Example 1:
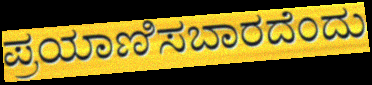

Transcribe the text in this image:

ಪ್ರಯಾಣಿಸಬಾರದೆಂದು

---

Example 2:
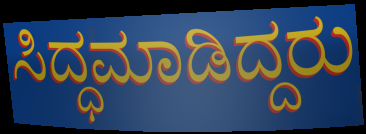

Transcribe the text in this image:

ಸಿದ್ಧಮಾಡಿದ್ದರು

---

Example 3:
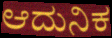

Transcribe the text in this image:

ಆದುನಿಕ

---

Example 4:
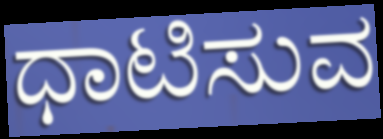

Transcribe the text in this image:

ಧಾಟಿಸುವ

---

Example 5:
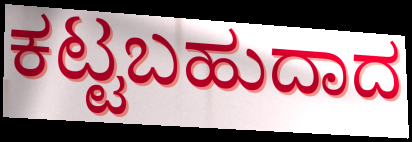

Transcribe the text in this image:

ಕಟ್ಟಬಹುದಾದ